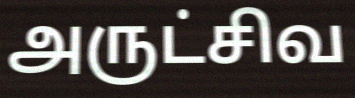
அருட்சிவ